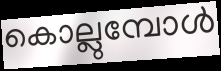
കൊല്ലുമ്പോൾ